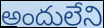
అందులేని